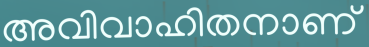
അവിവാഹിതനാണ്